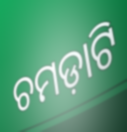
ଚମଡ଼ାଟି